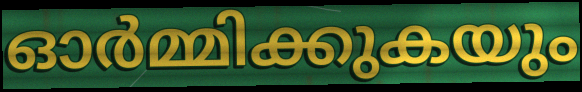
ഓർമ്മിക്കുകയും